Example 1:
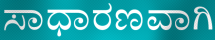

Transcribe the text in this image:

ಸಾಧಾರಣವಾಗಿ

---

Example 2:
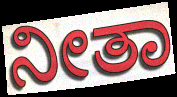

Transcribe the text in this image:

ನೀತಾ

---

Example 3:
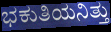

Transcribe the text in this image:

ಭಕುತಿಯನಿತ್ತು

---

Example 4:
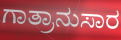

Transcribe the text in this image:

ಗಾತ್ರಾನುಸಾರ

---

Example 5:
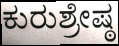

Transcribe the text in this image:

ಕುರುಶ್ರೇಷ್ಠ